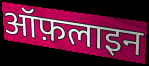
ऑफ़लाइन